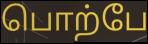
பொற்பே